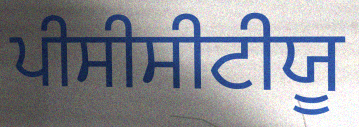
ਪੀਸੀਸੀਟੀਯੂ